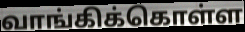
வாங்கிக்கொள்ள